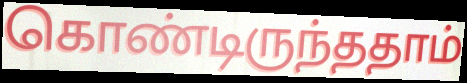
கொண்டிருந்ததாம்